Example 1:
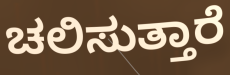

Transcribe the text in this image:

ಚಲಿಸುತ್ತಾರೆ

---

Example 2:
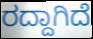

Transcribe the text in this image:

ರದ್ದಾಗಿದೆ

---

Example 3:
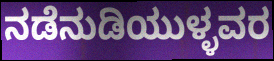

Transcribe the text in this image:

ನಡೆನುಡಿಯುಳ್ಳವರ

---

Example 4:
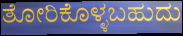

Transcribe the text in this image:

ತೋರಿಕೊಳ್ಳಬಹುದು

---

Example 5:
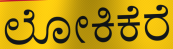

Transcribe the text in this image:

ಲೋಕಿಕೆರೆ